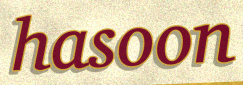
hasoon